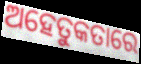
ଅହେତୁକତାରେ